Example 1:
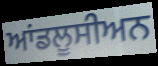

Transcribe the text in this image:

ਆਂਡਲੂਸੀਅਨ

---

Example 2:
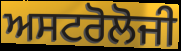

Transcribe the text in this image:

ਅਸਟਰੋਲੋਜੀ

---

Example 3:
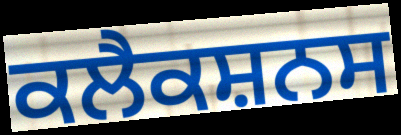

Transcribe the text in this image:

ਕਲੈਕਸ਼ਨਸ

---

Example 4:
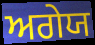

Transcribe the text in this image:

ਅਗੇਯ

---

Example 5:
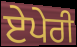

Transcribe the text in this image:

ਏਪੇਰੀ